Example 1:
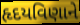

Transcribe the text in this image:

હૃદયવિણાને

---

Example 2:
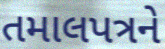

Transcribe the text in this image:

તમાલપત્રને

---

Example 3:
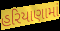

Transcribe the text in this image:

હરિયાણામાં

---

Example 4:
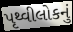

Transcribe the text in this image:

પૃથ્વીલોકનું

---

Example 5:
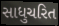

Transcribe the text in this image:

સાધુચરિત